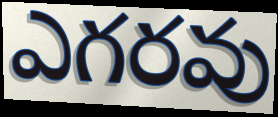
ఎగరవు